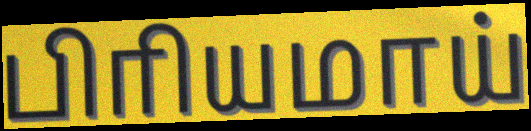
பிரியமாய்